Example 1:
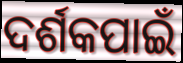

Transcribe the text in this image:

ଦର୍ଶକପାଇଁ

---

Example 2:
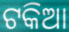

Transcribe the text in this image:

ଟକିଆ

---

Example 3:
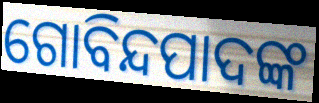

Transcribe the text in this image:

ଗୋବିନ୍ଦପାଦଙ୍କ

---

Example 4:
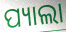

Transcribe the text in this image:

ପ୍ୟାଲା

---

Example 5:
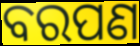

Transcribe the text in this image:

ବରପଣ